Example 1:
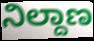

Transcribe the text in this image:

ನಿಲ್ದಾಣ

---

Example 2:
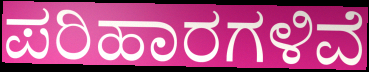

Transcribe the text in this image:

ಪರಿಹಾರಗಳಿವೆ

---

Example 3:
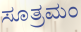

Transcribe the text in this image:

ಸೂತ್ರಮಂ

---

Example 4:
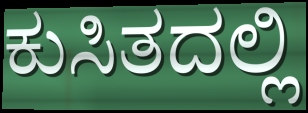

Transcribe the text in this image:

ಕುಸಿತದಲ್ಲಿ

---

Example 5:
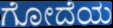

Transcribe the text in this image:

ಗೋದೆಯ